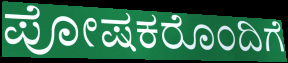
ಪೋಷಕರೊಂದಿಗೆ